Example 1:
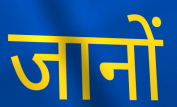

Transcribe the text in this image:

जानों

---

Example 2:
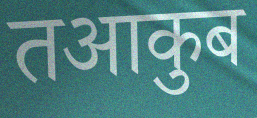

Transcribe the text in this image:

तआकुब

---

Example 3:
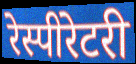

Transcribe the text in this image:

रेस्पीरेटरी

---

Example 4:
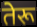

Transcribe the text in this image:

तेरू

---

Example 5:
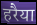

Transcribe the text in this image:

हरैया